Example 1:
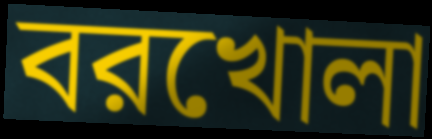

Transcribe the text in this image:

বরখোলা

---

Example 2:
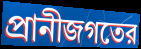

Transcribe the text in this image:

প্রানীজগতের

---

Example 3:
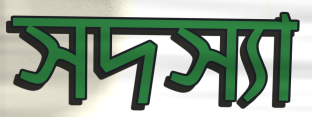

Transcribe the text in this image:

সদস্যা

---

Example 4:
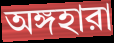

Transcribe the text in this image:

অঙ্গহারা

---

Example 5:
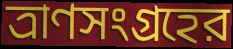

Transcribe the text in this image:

ত্রাণসংগ্রহের